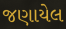
જણાયેલ